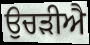
ਉਚੜੀਐ